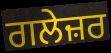
ਗਲੇਜ਼ਰ